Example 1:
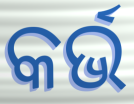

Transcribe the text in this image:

କର୍ଭ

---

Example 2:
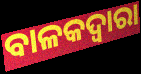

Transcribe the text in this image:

ବାଳକଦ୍ୱାରା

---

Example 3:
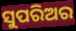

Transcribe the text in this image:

ସୁପରିଅର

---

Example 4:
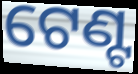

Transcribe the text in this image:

ଟେଣ୍ଟ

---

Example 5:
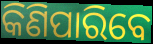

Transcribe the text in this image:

କିଣିପାରିବେ